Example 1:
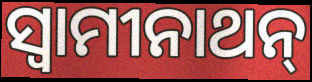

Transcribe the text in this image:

ସ୍ବାମୀନାଥନ୍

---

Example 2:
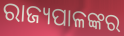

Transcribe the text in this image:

ରାଜ୍ୟପାଳଙ୍କର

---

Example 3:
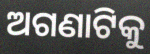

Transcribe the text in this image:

ଅଗଣାଟିକୁ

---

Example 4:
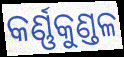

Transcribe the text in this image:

କର୍ଣ୍ଣକୁଣ୍ଡଳ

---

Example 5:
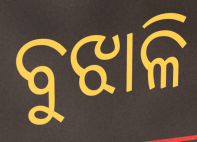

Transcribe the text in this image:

ବୁଝାଳି